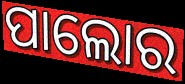
ପାଲୋର